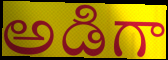
అడిగా